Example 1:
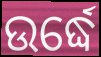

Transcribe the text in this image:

ଉର୍ଦ୍ଧେ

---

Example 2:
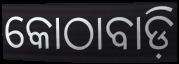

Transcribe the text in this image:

କୋଠାବାଡ଼ି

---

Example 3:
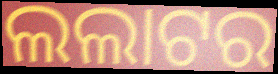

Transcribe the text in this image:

ଲଲାଟର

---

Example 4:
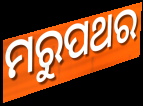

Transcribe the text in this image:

ମରୁପଥର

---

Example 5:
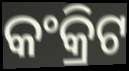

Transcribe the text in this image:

କଂକ୍ରିଟ